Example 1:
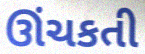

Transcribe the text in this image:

ઊંચકતી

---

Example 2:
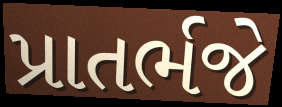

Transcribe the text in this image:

પ્રાતર્ભજે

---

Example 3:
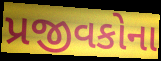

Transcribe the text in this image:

પ્રજીવકોના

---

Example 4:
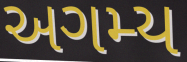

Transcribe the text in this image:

અગમ્ય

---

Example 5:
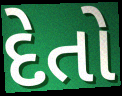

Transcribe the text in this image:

દેતો